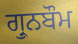
ਗ੍ਰੁਨਬੌਮ